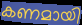
കണമായി